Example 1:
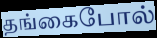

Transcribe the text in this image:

தங்கைபோல்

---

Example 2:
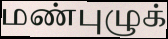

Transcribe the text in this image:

மண்புழுக்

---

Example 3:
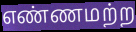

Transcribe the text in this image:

எண்ணமற்ற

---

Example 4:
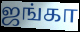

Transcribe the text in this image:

ஜங்கா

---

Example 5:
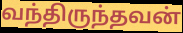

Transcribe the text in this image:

வந்திருந்தவன்